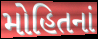
મોહિતનાં